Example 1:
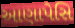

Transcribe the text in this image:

આણાપેસિ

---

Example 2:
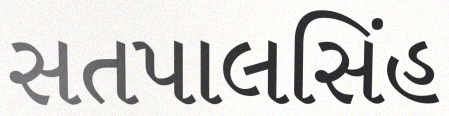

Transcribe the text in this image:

સતપાલસિંહ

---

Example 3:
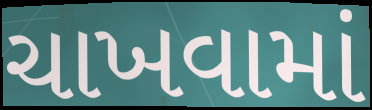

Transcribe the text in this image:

ચાખવામાં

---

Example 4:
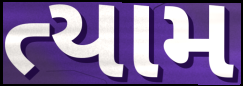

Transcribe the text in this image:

ત્યામ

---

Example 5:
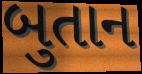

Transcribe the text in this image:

બુતાન